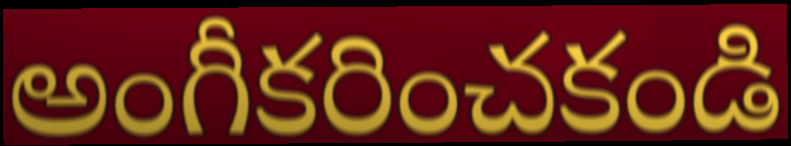
అంగీకరించకండి